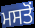
ਮਸਤੋਂ